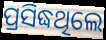
ପ୍ରସିଦ୍ଧଥିଲେ